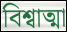
বিশ্বাত্মা